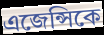
এজেন্সিকে